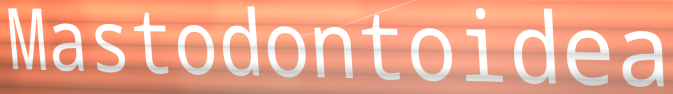
Mastodontoidea